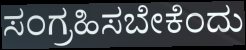
ಸಂಗ್ರಹಿಸಬೇಕೆಂದು